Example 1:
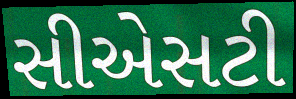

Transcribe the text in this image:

સીએસટી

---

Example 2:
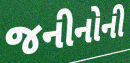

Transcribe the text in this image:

જનીનોની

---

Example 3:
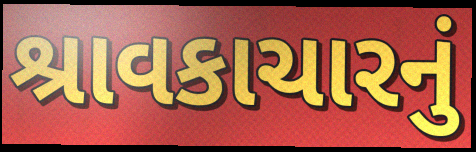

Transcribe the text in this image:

શ્રાવકાચારનું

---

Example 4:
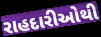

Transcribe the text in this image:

રાહદારીઓથી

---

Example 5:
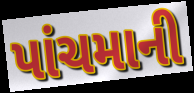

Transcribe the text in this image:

પાંચમાની